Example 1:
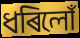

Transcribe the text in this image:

ধৰিলোঁ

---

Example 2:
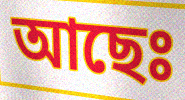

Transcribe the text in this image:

আছেঃ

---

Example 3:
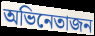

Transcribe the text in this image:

অভিনেতাজন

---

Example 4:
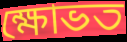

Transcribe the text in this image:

ক্ষোভত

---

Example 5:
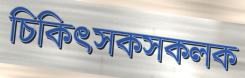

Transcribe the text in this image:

চিকিৎসকসকলক